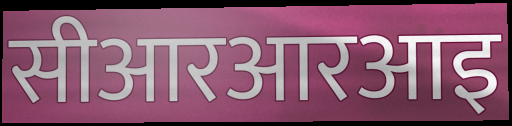
सीआरआरआइ